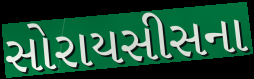
સોરાયસીસના